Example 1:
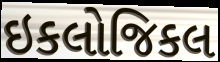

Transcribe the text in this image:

ઇકલોજિકલ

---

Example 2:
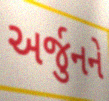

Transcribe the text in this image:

અર્જુનને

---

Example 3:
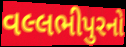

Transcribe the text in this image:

વલ્લભીપુરનો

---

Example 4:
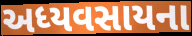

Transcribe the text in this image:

અધ્યવસાયના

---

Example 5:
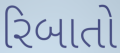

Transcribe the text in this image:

રિબાતો